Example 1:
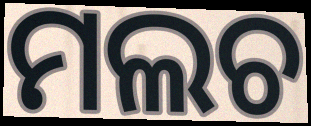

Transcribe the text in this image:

ମଲଚ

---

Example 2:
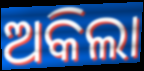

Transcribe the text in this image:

ଅକିଲା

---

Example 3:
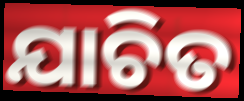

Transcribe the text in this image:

ଯାଚିତ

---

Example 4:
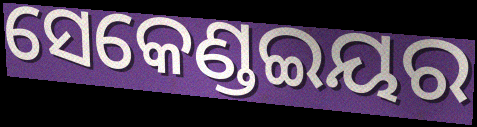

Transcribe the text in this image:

ସେକେଣ୍ଡଇୟର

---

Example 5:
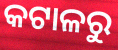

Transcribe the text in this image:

କଟାଳରୁ